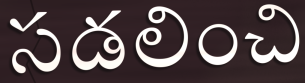
సడలించి